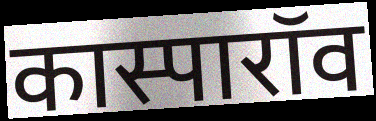
कास्पारॉव